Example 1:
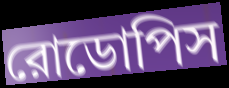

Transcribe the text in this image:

রোডোপিস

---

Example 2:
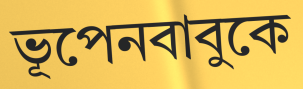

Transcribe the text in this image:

ভূপেনবাবুকে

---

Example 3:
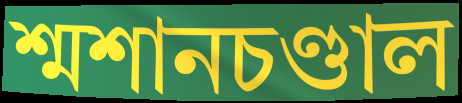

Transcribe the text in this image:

শ্মশানচণ্ডাল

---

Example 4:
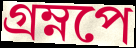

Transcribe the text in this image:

গ্রম্নপে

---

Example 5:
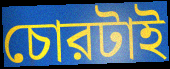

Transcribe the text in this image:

চোরটাই